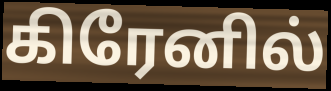
கிரேனில்